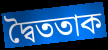
দ্বৈততাক